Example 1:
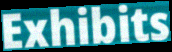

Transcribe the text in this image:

Exhibits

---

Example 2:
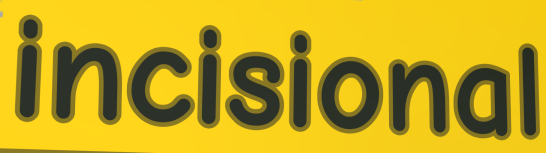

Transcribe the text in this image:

incisional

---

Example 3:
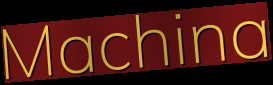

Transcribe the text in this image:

Machina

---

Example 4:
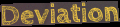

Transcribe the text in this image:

Deviation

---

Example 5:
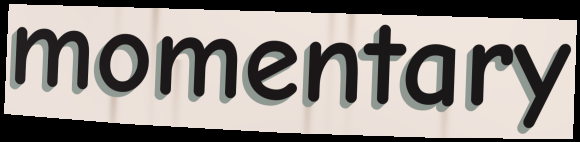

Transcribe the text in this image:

momentary